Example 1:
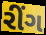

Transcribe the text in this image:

રીંગ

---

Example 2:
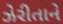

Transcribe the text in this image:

ઝેરીતાને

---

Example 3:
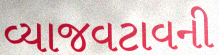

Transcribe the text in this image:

વ્યાજવટાવની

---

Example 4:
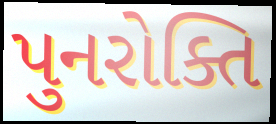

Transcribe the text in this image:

પુનરોક્તિ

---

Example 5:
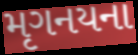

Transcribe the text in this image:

મૃગનયના